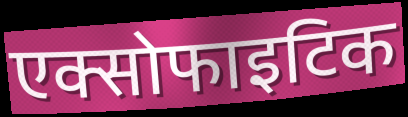
एक्सोफाइटिक